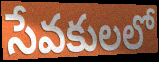
సేవకులలో